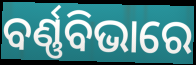
ବର୍ଣ୍ଣବିଭାରେ